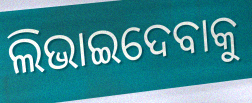
ଲିଭାଇଦେବାକୁ